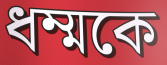
ধম্মকে